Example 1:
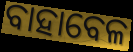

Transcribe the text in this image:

ବାହାବେଳ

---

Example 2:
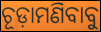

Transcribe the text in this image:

ଚୂଡ଼ାମଣିବାବୁ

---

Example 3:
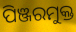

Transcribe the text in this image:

ପିଞ୍ଜରମୁକ୍ତ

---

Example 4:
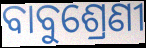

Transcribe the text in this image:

ବାବୁଶ୍ରେଣୀ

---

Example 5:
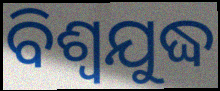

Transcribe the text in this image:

ବିଶ୍ୱଯୁଦ୍ଧ